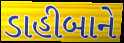
ડાહીબાને